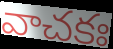
వాచకః